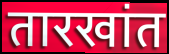
तारखांत